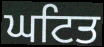
ਘਟਿਤ